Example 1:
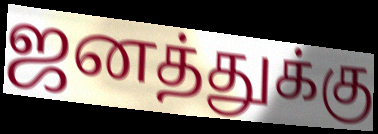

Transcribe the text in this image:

ஜனத்துக்கு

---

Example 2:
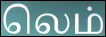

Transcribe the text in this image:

லெம்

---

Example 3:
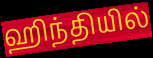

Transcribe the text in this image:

ஹிந்தியில்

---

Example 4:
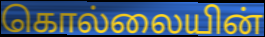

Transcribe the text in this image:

கொல்லையின்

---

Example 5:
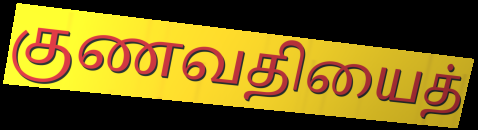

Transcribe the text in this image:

குணவதியைத்